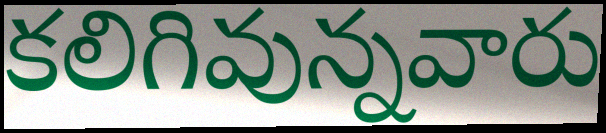
కలిగివున్నవారు